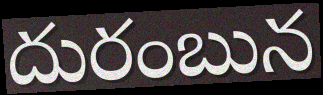
దురంబున